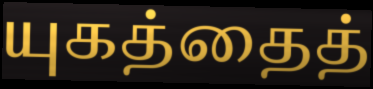
யுகத்தைத்